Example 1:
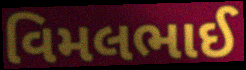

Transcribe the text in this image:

વિમલભાઈ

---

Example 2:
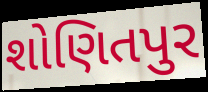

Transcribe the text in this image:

શોણિતપુર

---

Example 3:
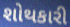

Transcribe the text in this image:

શોથકારી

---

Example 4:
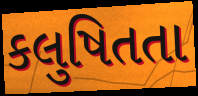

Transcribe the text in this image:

કલુષિતતા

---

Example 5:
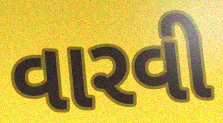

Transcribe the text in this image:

વારવી